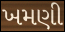
ખમણી